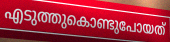
എടുത്തുകൊണ്ടുപോയത്